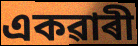
একৱাৰী